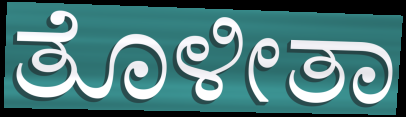
ತೊಳೀತಾ